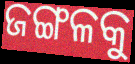
ଜଙ୍ଗଳକୁ